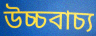
উচ্চবাচ্য